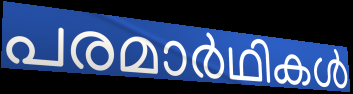
പരമാർഥികൾ